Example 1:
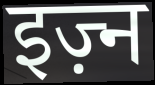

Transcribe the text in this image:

इज़्न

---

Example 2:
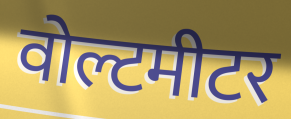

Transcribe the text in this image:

वोल्टमीटर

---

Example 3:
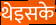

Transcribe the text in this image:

थेइसके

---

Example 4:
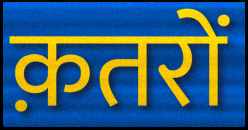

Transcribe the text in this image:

क़तरों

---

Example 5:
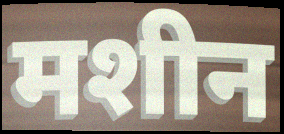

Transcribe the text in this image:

मशीन